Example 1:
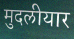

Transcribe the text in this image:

मुदलीयार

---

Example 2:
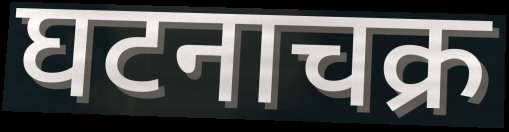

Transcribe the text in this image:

घटनाचक्र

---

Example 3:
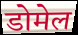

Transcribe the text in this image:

डोमेल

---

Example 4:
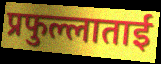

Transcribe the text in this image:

प्रफुल्लाताई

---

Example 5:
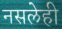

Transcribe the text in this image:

नसलेही